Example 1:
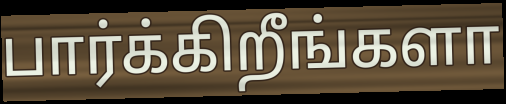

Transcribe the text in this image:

பார்க்கிறீங்களா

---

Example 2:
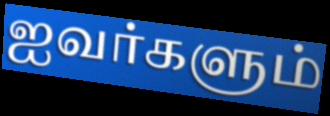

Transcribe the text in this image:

ஐவர்களும்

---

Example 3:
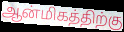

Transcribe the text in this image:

ஆன்மிகத்திற்கு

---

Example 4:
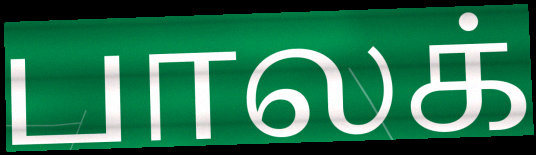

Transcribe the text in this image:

பாலக்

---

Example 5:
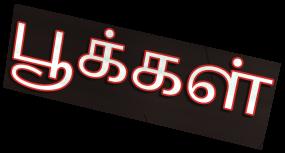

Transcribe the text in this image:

பூக்கள்